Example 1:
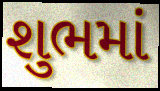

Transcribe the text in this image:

શુભમાં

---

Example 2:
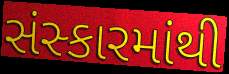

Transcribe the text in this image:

સંસ્કારમાંથી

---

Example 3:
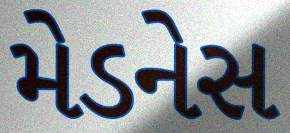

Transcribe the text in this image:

મેડનેસ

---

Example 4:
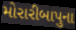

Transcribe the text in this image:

મોરારીબાપુના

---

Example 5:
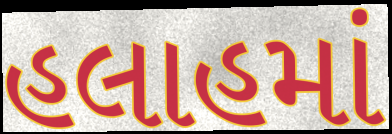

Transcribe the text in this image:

હલાહમાં